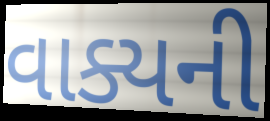
વાક્યની